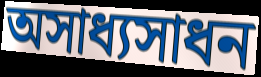
অসাধ্যসাধন